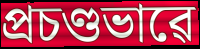
প্ৰচণ্ডভাৱে